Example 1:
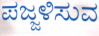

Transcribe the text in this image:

ಪಜ್ಜಳಿಸುವ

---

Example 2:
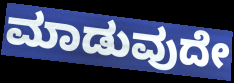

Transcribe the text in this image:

ಮಾಡುವುದೇ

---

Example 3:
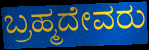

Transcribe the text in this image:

ಬ್ರಹ್ಮದೇವರು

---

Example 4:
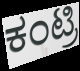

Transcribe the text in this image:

ಕಂಟ್ರಿ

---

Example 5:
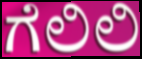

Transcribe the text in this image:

ಗೆಲಿಲಿ